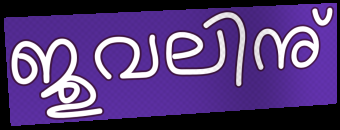
ജുവലിനു്